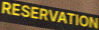
RESERVATION